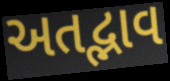
અતદ્ભાવ